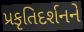
પ્રકૃતિદર્શનને